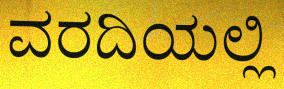
ವರದಿಯಲ್ಲಿ